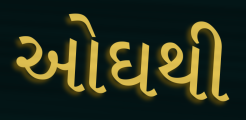
ઓઘથી